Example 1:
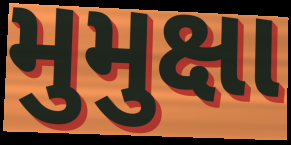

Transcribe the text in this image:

મુમુક્ષા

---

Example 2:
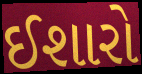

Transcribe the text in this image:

ઈશારો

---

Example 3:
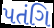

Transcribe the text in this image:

પતંગિ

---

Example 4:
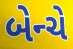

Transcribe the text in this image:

બેન્ચે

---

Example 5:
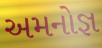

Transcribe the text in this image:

અમનોજ્ઞ